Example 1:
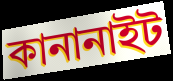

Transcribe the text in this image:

কানানাইট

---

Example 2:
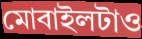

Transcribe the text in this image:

মোবাইলটাও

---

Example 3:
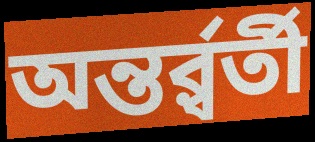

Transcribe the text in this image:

অন্তর্র্বর্তী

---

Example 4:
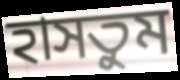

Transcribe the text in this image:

হাসতুম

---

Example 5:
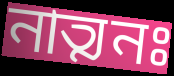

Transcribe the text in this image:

নাত্মনঃ